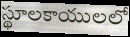
స్థూలకాయులలో